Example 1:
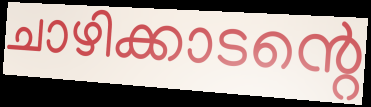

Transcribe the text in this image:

ചാഴിക്കാടന്റെ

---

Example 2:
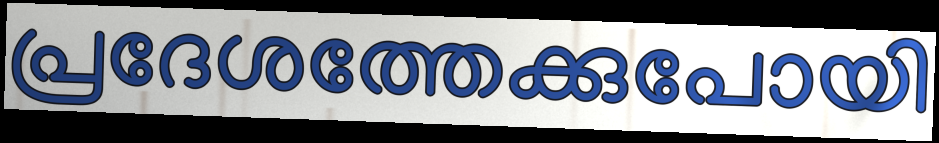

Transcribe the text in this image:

പ്രദേശത്തേക്കുപോയി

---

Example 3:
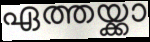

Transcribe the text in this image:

ഏത്തയ്ക്കാ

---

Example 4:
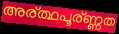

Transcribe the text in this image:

അര്ത്ഥപൂര്ണ്ണത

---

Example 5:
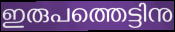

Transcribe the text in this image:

ഇരുപത്തെട്ടിനു